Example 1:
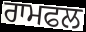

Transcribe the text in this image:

ਰਾਮਫਲ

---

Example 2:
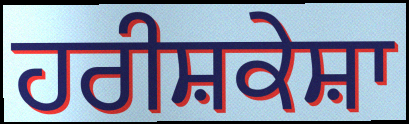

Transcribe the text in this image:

ਹਰੀਸ਼ਕੇਸ਼ਾ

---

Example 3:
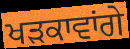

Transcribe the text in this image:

ਖੜਕਾਵਾਂਗੇ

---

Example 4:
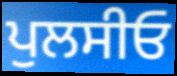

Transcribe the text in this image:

ਪੁਲਸੀਓ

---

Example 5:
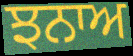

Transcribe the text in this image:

ਝਨਾਅ